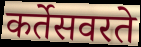
कर्तेसवरते